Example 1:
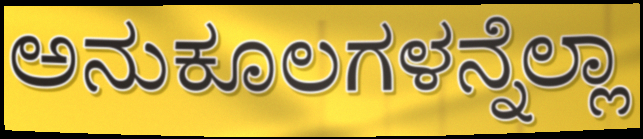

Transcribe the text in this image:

ಅನುಕೂಲಗಳನ್ನೆಲ್ಲಾ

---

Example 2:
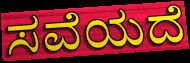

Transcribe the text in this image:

ಸವೆಯದೆ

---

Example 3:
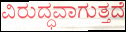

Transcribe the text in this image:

ವಿರುದ್ಧವಾಗುತ್ತದೆ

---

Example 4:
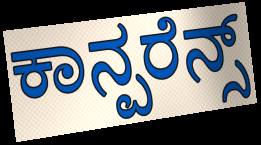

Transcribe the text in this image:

ಕಾನ್ಪರೆನ್ಸ್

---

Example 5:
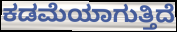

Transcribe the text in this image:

ಕಡಮೆಯಾಗುತ್ತಿದೆ